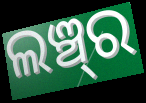
ଲଞ୍ଚ୍‍ର